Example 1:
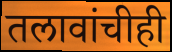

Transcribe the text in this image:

तलावांचीही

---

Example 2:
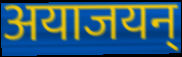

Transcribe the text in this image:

अयाजयन्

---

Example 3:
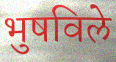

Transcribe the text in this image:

भुषविले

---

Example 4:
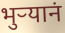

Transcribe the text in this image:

भुऱ्यानं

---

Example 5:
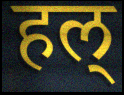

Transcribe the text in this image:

हल्